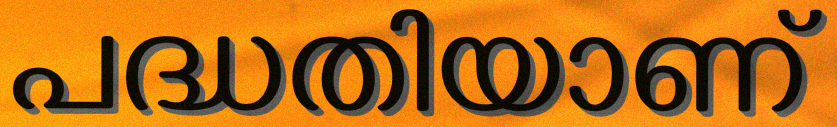
പദ്ധതിയാണ്